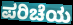
ಪರಿಚೆಯ